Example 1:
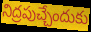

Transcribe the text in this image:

నిద్రపుచ్చేందుకు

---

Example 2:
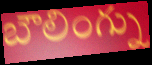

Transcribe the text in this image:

బౌలింగ్ను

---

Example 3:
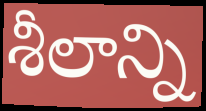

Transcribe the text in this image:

శీలాన్ని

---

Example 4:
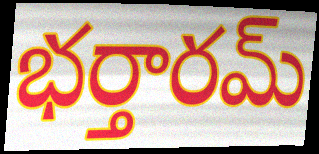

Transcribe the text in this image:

భర్తారమ్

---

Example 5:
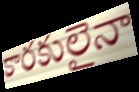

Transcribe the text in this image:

కారకులైనా